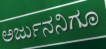
ಅರ್ಜುನನಿಗೂ